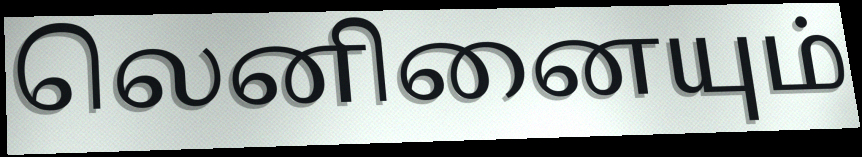
லெனினையும்